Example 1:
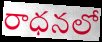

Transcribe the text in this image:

రాధనలో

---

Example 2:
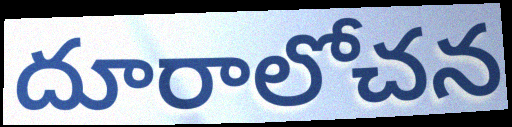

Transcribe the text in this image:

దూరాలోచన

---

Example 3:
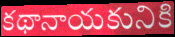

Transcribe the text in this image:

కథానాయకునికి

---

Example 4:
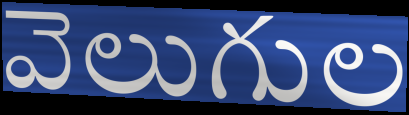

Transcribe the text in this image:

వెలుగుల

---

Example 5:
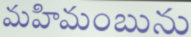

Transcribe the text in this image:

మహిమంబును